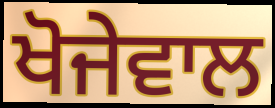
ਖੋਜੇਵਾਲ